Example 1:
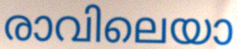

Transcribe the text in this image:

രാവിലെയാ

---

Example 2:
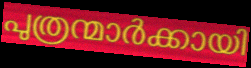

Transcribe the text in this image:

പുത്രന്മാർക്കായി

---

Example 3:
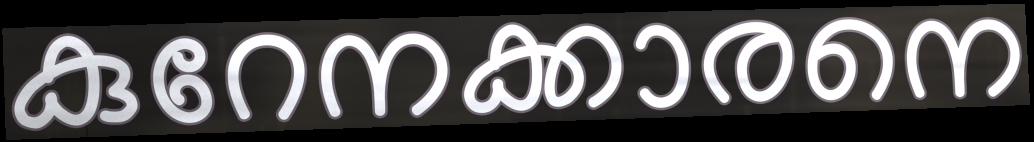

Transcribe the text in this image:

കുറേനക്കാരനെ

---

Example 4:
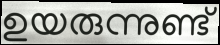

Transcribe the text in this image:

ഉയരുന്നുണ്ട്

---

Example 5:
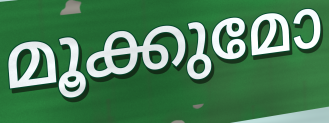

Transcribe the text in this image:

മൂക്കുമോ